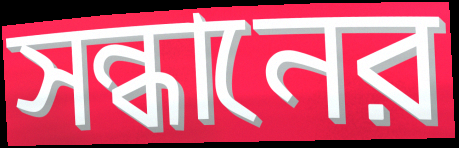
সন্ধানের